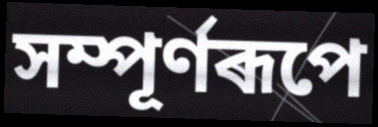
সম্পূৰ্ণৰূপে